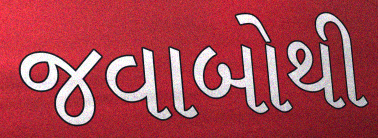
જવાબોથી